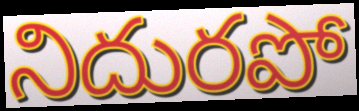
నిదురపో